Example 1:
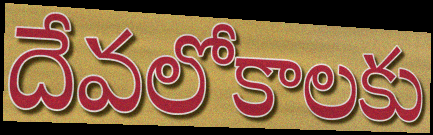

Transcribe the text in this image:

దేవలోకాలకు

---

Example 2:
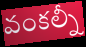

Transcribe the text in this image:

వంకల్నీ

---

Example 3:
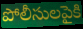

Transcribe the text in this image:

పోలీసులపైకి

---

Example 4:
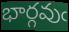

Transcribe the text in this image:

భార్గవుఁ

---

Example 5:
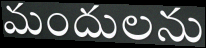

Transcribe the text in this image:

మందులను